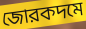
জোরকদমে